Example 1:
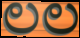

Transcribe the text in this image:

ಲಲ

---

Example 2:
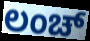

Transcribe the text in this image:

ಲಂಚ್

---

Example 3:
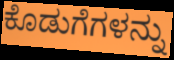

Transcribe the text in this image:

ಕೊಡುಗೆಗಳನ್ನು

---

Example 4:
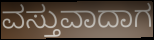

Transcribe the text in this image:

ವಸ್ತುವಾದಾಗ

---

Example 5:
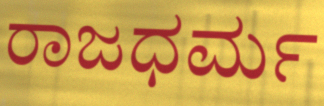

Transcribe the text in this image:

ರಾಜಧರ್ಮ